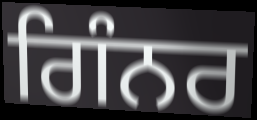
ਗਿੰਨਰ